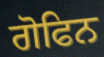
ਗੋਫਿਨ